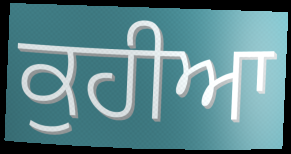
ਕੁਹੀਆ